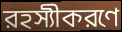
রহস্যীকরণে